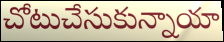
చోటుచేసుకున్నాయా